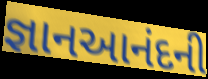
જ્ઞાનઆનંદની